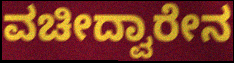
ವಚೀದ್ವಾರೇನ